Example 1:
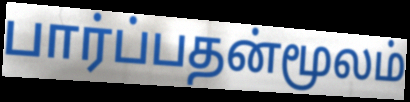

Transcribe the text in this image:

பார்ப்பதன்மூலம்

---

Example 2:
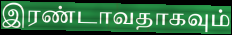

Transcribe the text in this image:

இரண்டாவதாகவும்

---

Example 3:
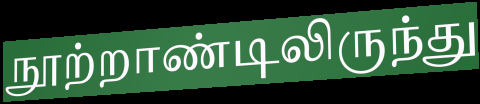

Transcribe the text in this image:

நூற்றாண்டிலிருந்து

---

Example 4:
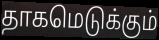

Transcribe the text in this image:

தாகமெடுக்கும்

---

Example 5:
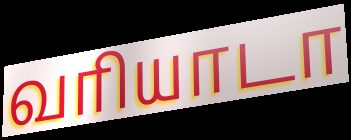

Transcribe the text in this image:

வரியாடா